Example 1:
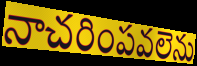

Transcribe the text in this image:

నాచరింపవలెను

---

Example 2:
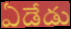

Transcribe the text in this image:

ఏడేడు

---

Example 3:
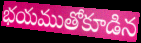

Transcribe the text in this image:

భయముతోకూడిన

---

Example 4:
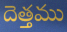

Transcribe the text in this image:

దెత్తము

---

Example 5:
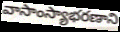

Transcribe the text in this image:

వాసాంస్యాభరణాని